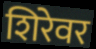
शिरेवर